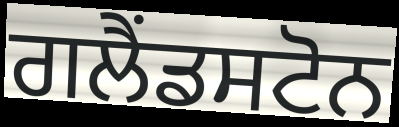
ਗਲੈਂਡਸਟੋਨ